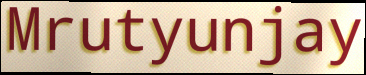
Mrutyunjay